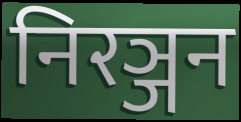
निरञ्जन